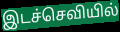
இடச்செவியில்